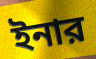
ইনার